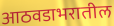
आठवडाभरातील